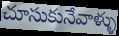
చూసుకునేవాళ్ళు